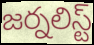
జర్నలిస్ట్